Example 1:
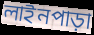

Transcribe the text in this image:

লাইনপাড়া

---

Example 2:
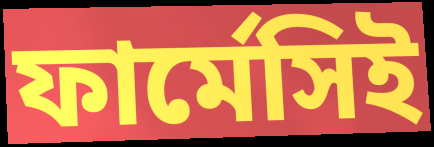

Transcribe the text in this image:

ফার্মেসিই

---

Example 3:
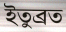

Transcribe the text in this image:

ইতুব্রত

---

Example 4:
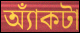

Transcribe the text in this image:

অ্যাঁকটা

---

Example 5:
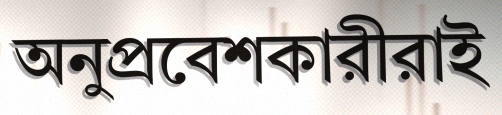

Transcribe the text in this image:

অনুপ্রবেশকারীরাই